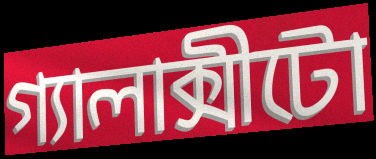
গ্যালাক্সীটো